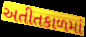
અતીતકાળમાં